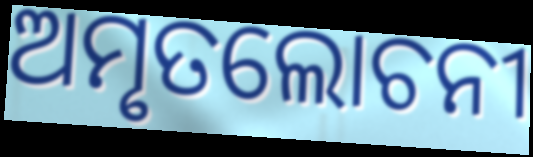
ଅମୃତଲୋଚନୀ